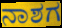
ನಾಶಗ